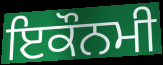
ਇਕੌਨਮੀ